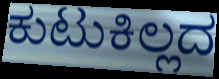
ಕುಟುಕಿಲ್ಲದ